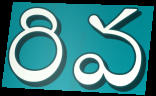
రివ